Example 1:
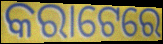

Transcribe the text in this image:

କରାଟେରେ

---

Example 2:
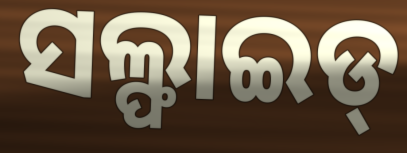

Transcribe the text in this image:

ସଲ୍ଫାଇଡ୍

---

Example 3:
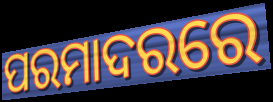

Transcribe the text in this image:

ପରମାଦରରେ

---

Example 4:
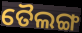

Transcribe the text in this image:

ତୈଲଙ୍ଗ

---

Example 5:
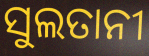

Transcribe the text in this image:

ସୁଲତାନୀ